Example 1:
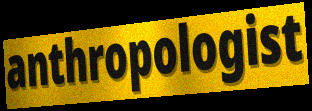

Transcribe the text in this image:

anthropologist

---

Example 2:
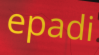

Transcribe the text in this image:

epadi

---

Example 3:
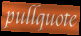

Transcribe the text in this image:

pullquote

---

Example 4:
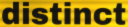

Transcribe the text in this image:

distinct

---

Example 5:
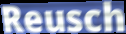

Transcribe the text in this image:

Reusch